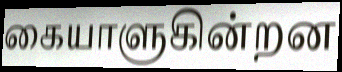
கையாளுகின்றன